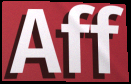
Aff